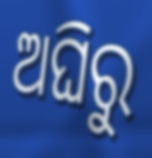
ଅଘିରୁ